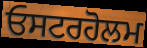
ਓਸਟਰਹੋਲਮ